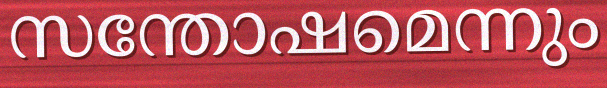
സന്തോഷമെന്നും